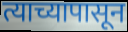
त्याच्यापासून